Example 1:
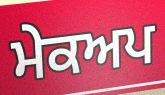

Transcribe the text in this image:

ਮੇਕਅਪ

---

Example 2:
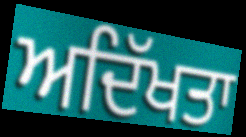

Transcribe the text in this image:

ਅਦਿੱਖਤਾ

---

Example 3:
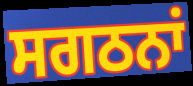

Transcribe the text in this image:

ਸਗਠਨਾਂ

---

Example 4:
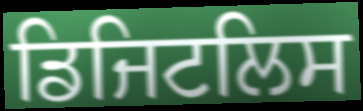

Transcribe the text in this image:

ਡਿਜਿਟਲਿਸ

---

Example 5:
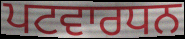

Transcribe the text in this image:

ਪਟਵਾਰਧਨ